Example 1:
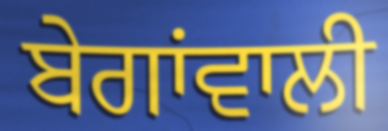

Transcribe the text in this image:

ਬੇਗਾਂਵਾਲੀ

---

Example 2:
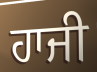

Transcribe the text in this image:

ਹਾਜੀ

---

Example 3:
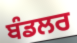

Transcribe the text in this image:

ਬੰਡਲਰ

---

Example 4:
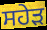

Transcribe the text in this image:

ਸਹੇੜ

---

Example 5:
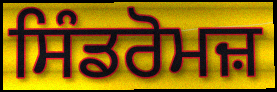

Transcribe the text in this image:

ਸਿੰਡਰੋਮਜ਼